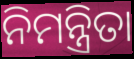
ନିମନ୍ତ୍ରିତା